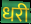
धरी